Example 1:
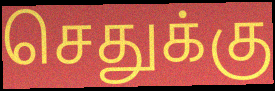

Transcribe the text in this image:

செதுக்கு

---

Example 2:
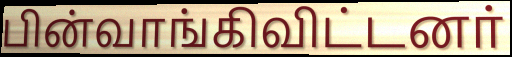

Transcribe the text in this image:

பின்வாங்கிவிட்டனர்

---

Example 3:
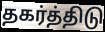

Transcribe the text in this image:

தகர்த்திடு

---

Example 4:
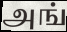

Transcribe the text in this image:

அங்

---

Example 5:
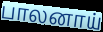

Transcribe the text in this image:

பாலனாய்